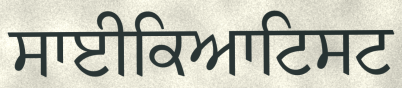
ਸਾਈਕਿਆਟਿਸਟ